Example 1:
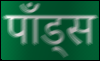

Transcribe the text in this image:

पाँड्स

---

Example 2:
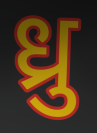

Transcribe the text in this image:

ध्रु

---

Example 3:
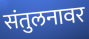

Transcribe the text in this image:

संतुलनावर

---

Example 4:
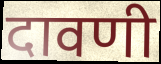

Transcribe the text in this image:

दावणी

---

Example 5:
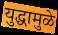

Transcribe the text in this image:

युद्धामुळे